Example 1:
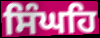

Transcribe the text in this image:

ਸਿੰਘਹਿ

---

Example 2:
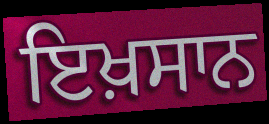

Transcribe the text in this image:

ਇਖ਼ਸਾਨ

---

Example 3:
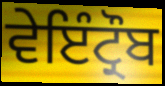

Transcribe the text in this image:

ਵੇਇੰਟ੍ਰੌਬ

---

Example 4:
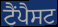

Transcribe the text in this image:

ਟੈਂਪੈਸਟ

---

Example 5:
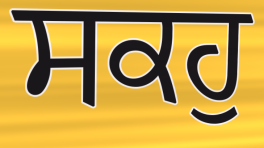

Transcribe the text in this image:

ਸਕਹੁ